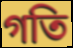
গতি